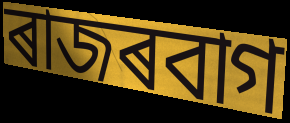
ৰাজৰবাগ